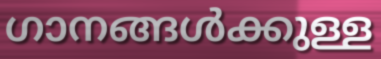
ഗാനങ്ങൾക്കുള്ള